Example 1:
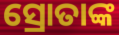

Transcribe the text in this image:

ସ୍ରୋତାଙ୍କ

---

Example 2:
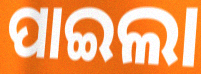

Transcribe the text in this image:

ପାଇଲା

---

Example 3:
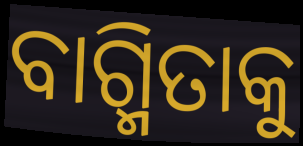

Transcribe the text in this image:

ବାଗ୍ମିତାକୁ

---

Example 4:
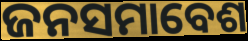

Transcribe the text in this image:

ଜନସମାବେଶ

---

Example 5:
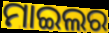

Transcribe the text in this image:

ମାଇଲର